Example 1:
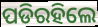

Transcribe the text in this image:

ପଡିରହିଲେ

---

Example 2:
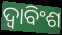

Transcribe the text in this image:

ଦ୍ଵାବିଂଶ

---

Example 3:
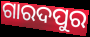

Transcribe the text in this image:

ଗାରଦପୁର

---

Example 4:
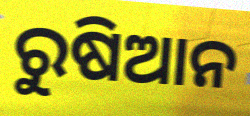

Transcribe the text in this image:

ରୁଷିଆନ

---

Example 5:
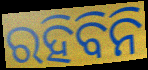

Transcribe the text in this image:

ରହିବିନି